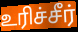
உரிச்சீர்